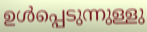
ഉൾപ്പെടുന്നുള്ളു